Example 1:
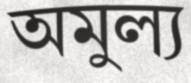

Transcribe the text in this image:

অমুল্য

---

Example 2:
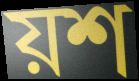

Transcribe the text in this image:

য়শ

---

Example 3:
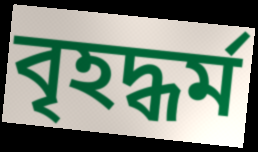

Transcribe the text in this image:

বৃহদ্ধৰ্ম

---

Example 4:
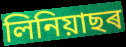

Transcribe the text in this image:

লিনিয়াছৰ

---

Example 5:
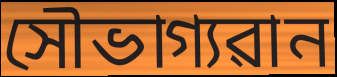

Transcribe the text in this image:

সৌভাগ্যৱান